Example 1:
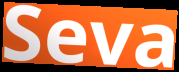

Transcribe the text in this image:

Seva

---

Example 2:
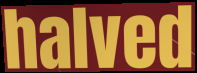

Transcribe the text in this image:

halved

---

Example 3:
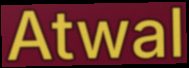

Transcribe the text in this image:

Atwal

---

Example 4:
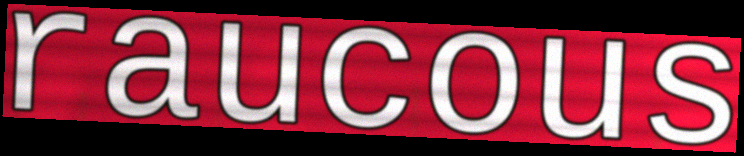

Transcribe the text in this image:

raucous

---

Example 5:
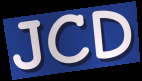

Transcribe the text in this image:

JCD